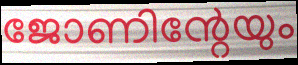
ജോണിന്റേയും